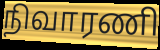
நிவாரணி